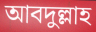
আবদুল্লাহ